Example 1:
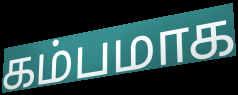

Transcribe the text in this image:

கம்பமாக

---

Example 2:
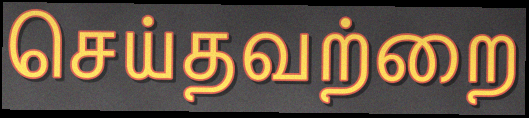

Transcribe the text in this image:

செய்தவற்றை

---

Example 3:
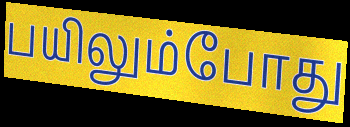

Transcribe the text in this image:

பயிலும்போது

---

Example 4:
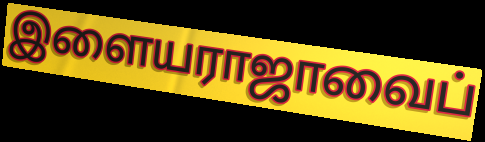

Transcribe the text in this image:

இளையராஜாவைப்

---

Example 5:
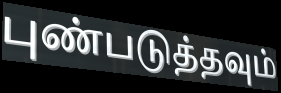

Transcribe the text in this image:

புண்படுத்தவும்